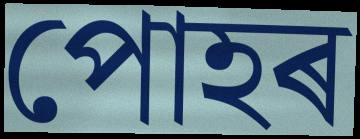
পোহৰ